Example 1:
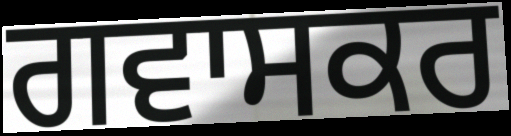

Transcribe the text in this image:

ਗਵਾਸਕਰ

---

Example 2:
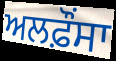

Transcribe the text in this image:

ਅਲਫ਼ੌਂਸਾ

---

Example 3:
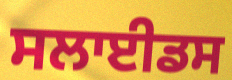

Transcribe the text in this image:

ਸਲਾਈਡਸ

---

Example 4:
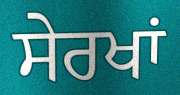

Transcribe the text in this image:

ਸੇਰਖਾਂ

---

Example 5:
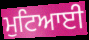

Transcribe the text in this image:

ਮੁਟਿਆਈ